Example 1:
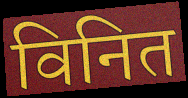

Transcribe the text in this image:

विनित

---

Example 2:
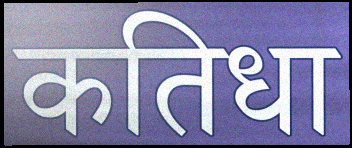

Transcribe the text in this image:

कतिधा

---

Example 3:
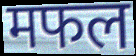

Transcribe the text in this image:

मफल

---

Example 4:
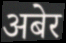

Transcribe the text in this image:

अबेर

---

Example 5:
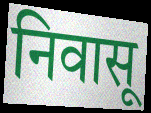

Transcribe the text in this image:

निवासू